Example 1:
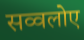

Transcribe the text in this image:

सव्वलोए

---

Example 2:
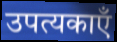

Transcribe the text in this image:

उपत्यकाएँ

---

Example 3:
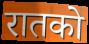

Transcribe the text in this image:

रातको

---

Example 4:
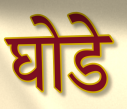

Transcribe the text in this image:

घोडे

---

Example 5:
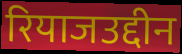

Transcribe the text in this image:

रियाजउद्दीन